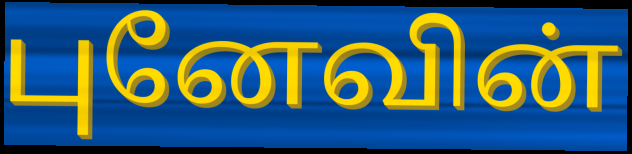
புனேவின்